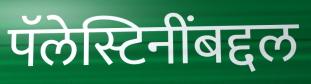
पॅलेस्टिनींबद्दल